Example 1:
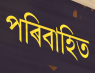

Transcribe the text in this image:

পৰিবাহিত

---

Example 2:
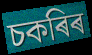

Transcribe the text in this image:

চকৰিৰ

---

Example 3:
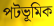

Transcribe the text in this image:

পটভূমিক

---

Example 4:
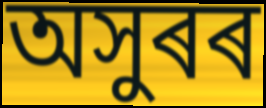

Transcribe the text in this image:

অসুৰৰ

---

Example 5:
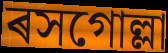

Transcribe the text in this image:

ৰসগোল্লা